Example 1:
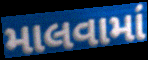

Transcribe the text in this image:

માલવામાં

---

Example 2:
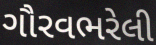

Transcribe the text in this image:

ગૌરવભરેલી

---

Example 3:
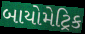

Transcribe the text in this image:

બાયોમેટ્રિક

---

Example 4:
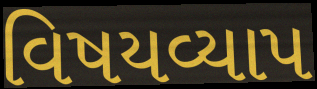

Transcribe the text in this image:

વિષયવ્યાપ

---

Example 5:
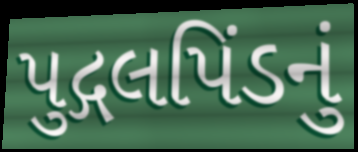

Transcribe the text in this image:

પુદ્ગલપિંડનું